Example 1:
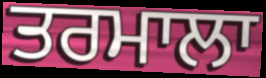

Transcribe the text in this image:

ਤਰਮਾਲਾ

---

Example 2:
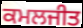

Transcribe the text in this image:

ਕਮਲਜੀਤ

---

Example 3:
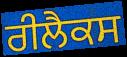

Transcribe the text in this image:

ਰੀਲੈਕਸ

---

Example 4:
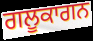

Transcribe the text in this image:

ਗਲੂਕਾਗਨ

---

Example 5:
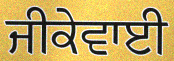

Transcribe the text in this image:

ਜੀਕੇਵਾਈ